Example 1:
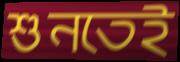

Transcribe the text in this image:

শুনতেই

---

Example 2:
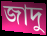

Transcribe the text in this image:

জাদু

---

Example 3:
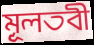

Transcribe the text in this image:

মূলতবী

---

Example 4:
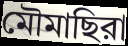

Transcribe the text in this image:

মৌমাছিরা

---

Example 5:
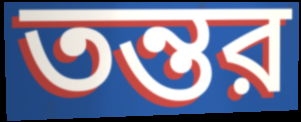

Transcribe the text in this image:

তন্তর